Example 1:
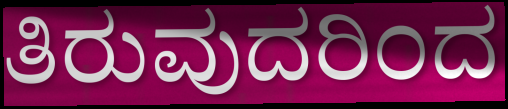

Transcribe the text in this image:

ತಿರುವುದರಿಂದ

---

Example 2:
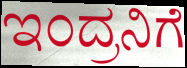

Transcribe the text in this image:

ಇಂದ್ರನಿಗೆ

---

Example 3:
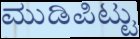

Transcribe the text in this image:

ಮುಡಿಪಿಟ್ಟು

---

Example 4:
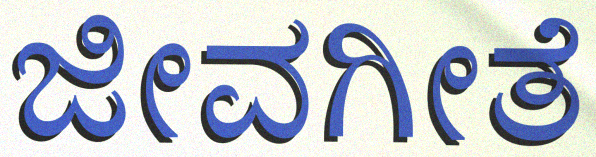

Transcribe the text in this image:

ಜೀವಗೀತೆ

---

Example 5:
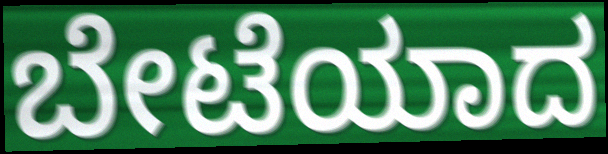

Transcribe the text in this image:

ಬೇಟೆಯಾದ